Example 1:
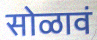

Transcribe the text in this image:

सोळावं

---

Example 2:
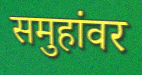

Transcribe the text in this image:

समुहांवर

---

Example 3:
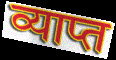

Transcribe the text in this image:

व्याप्त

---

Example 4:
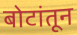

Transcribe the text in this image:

बोटांतून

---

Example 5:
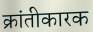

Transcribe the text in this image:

क्रांतीकारक